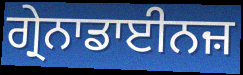
ਗ੍ਰੇਨਾਡਾਈਨਜ਼